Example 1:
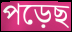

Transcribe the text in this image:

পড়েছ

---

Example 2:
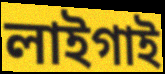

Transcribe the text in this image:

লাইগাই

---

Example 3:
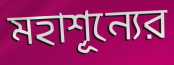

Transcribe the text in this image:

মহাশূন্যের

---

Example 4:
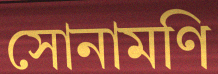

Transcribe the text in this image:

সোনামণি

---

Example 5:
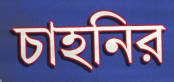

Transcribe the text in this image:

চাহনির